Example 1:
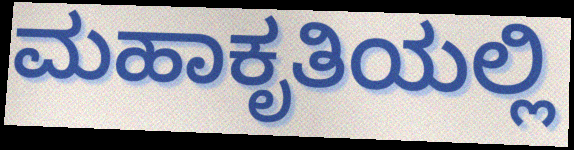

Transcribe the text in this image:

ಮಹಾಕೃತಿಯಲ್ಲಿ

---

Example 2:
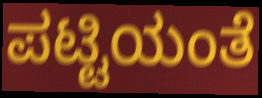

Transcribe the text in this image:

ಪಟ್ಟಿಯಂತೆ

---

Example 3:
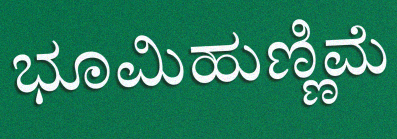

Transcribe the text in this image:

ಭೂಮಿಹುಣ್ಣಿಮೆ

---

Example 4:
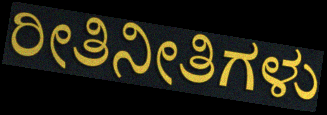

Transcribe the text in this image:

ರೀತಿನೀತಿಗಳು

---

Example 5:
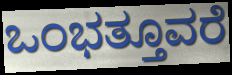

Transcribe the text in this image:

ಒಂಭತ್ತೂವರೆ